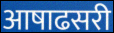
आषाढसरी